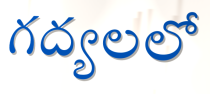
గద్యలలో